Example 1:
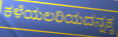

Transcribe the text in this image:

ಕಳೆಯಲರಿಯದನ್ನಕ್ಕ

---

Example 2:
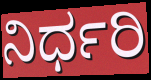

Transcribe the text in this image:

ನಿರ್ಧರಿ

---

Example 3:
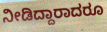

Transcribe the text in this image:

ನೀಡಿದ್ದಾರಾದರೂ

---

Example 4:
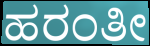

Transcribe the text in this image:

ಹರಂತೀ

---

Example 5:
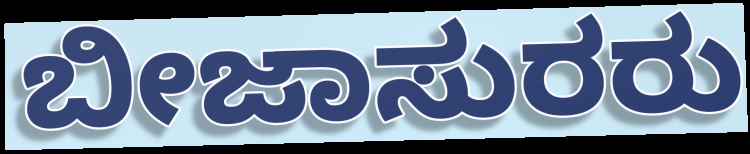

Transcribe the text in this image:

ಬೀಜಾಸುರರು